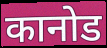
कानोड